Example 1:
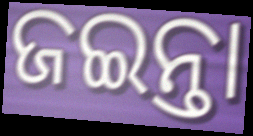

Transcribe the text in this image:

ଜଇନ୍ତା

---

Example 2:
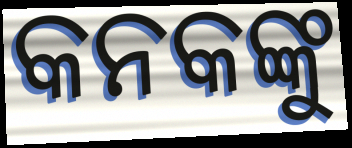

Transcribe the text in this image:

କନକଙ୍କୁ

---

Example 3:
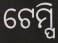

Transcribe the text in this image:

ଟେମ୍ପି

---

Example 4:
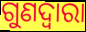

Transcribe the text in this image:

ଗୁଣଦ୍ଵାରା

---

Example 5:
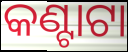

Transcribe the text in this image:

କଣ୍ଟାଟା